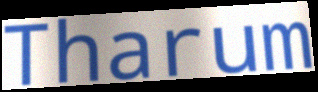
Tharum